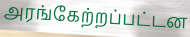
அரங்கேற்றப்பட்டன